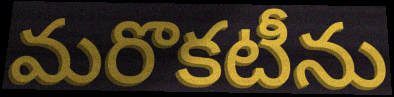
మరొకటీను